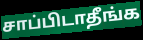
சாப்பிடாதீங்க